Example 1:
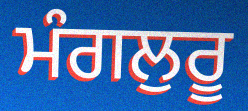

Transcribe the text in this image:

ਮੰਗਲੁਰੂ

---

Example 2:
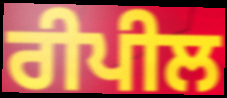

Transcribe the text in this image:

ਰੀਪੀਲ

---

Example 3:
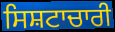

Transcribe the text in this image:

ਸਿਸ਼ਟਾਚਾਰੀ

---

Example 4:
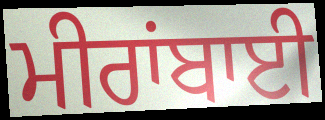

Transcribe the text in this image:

ਮੀਰਾਂਬਾਈ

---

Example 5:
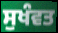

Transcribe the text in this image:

ਸੁਖੰਵਤ